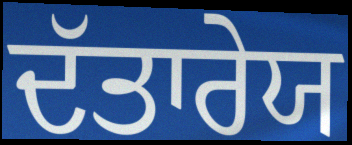
ਦੱਤਾਰੇਯ